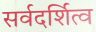
सर्वदर्शित्व